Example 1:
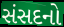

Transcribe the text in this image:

સંસદનો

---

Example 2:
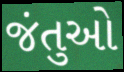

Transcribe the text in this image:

જંતુઓ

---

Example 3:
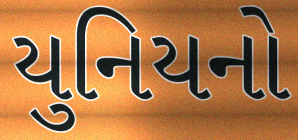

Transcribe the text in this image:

યુનિયનો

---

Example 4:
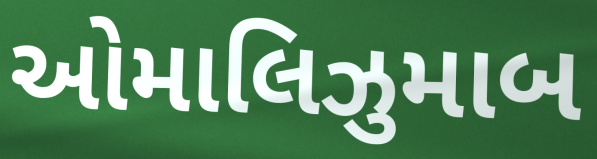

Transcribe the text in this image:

ઓમાલિઝુમાબ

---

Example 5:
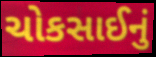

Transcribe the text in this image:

ચોકસાઈનું